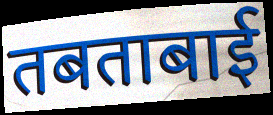
तबताबाई